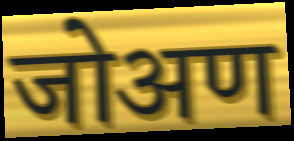
जोअण